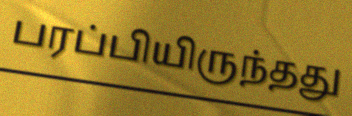
பரப்பியிருந்தது